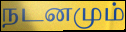
நடனமும்